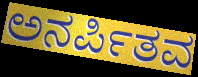
ಅನರ್ಪಿತವ